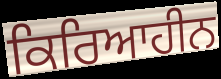
ਕਿਰਿਆਹੀਨ